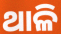
ଥାଳି